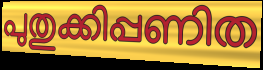
പുതുക്കിപ്പണിത